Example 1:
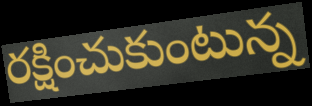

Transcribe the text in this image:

రక్షించుకుంటున్న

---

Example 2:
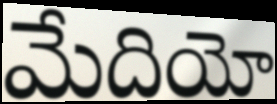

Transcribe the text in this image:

మేదియో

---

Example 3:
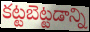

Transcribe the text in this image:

కట్టబెట్టడాన్ని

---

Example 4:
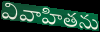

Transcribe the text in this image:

వివాహితను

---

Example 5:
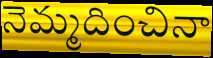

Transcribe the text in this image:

నెమ్మదించినా